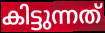
കിട്ടുന്നത്